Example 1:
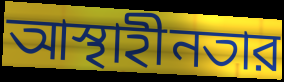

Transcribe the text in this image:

আস্থাহীনতার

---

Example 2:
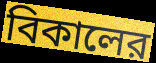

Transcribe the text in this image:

বিকালের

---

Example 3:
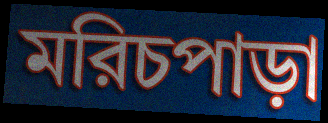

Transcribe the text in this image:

মরিচপাড়া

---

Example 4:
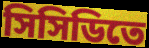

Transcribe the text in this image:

সিসিডিতে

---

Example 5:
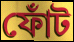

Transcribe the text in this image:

ফোঁট